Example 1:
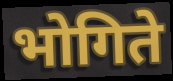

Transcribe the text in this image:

भोगिते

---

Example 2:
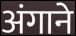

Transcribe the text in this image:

अंगाने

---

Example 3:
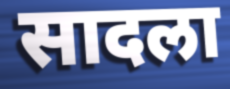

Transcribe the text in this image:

सादला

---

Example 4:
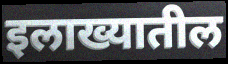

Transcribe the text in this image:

इलाख्यातील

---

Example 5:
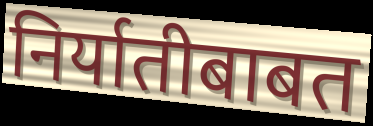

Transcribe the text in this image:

निर्यातीबाबत